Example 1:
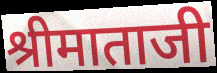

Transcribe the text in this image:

श्रीमाताजी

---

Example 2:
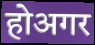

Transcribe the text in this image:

होअगर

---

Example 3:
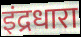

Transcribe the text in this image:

इंद्रधारा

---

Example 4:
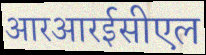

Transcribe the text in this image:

आरआरईसीएल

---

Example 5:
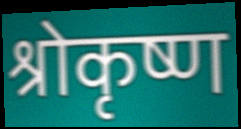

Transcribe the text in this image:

श्रोकृष्ण